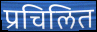
प्रचिलित